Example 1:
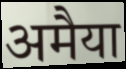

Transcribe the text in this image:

अमैया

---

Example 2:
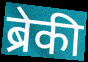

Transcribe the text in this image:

ब्रेकी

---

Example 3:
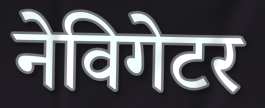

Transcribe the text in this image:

नेविगेटर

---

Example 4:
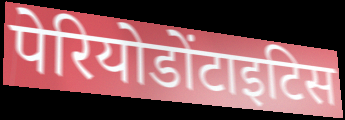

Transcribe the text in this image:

पेरियोडोंटाइटिस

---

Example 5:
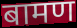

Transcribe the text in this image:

बामण